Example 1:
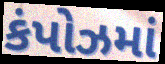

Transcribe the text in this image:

કંપોઝમાં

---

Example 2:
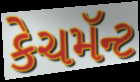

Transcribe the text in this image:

કેચમૅન્ટ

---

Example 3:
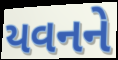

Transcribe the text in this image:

યવનને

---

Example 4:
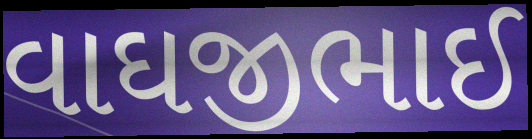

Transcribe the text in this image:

વાઘજીભાઈ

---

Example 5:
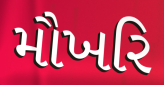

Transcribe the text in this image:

મૌખરિ